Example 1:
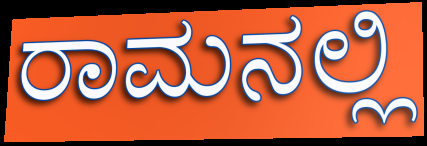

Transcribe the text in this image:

ರಾಮನಲ್ಲಿ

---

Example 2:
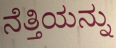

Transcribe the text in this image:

ನೆತ್ತಿಯನ್ನು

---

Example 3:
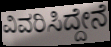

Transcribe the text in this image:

ವಿವರಿಸಿದ್ದೇನೆ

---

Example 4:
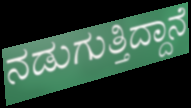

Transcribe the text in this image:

ನಡುಗುತ್ತಿದ್ದಾನೆ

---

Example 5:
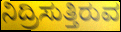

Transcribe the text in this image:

ನಿದ್ರಿಸುತ್ತಿರುವ